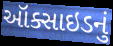
ઑક્સાઇડનું